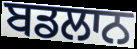
ਬਡਲਾਨ